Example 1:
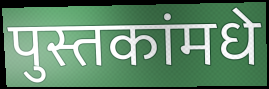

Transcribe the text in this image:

पुस्तकांमधे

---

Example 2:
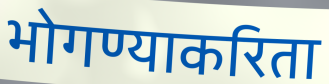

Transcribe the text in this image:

भोगण्याकरिता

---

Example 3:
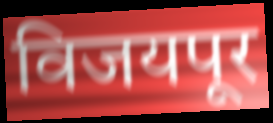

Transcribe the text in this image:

विजयपूर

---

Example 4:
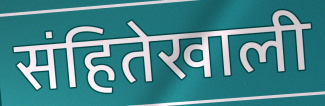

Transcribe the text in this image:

संहितेखाली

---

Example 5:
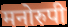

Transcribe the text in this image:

मनोरुपी